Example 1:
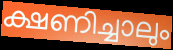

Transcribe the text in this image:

ക്ഷണിച്ചാലും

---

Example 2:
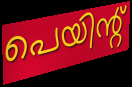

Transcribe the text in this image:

പെയിന്റ്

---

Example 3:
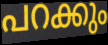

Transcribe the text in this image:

പറക്കും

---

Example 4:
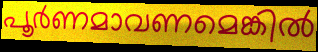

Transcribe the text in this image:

പൂർണമാവണമെങ്കിൽ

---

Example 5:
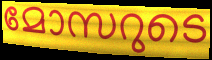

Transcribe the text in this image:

മോസറുടെ